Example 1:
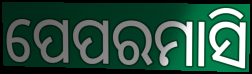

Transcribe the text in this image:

ପେପରମାସି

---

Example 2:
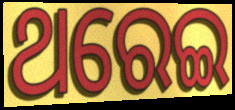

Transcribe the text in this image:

ଥରେଇ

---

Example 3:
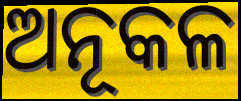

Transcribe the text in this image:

ଅନୂକଳ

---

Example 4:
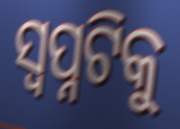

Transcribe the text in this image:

ସ୍ୱପ୍ନଟିକୁ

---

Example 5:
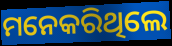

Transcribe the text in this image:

ମନେକରିଥିଲେ